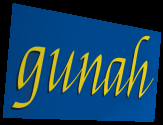
gunah